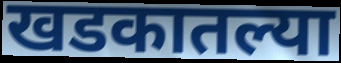
खडकातल्या